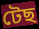
টেছ